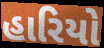
હારિયો